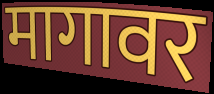
मागावर